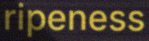
ripeness